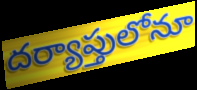
దర్యాప్తులోనూ